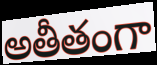
అతీతంగా